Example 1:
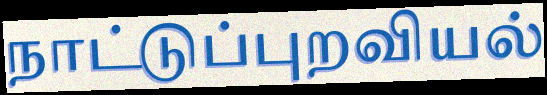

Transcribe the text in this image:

நாட்டுப்புறவியல்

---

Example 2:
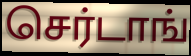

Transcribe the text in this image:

செர்டாங்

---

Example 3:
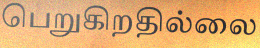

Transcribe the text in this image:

பெறுகிறதில்லை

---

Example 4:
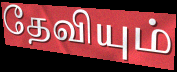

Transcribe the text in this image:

தேவியும்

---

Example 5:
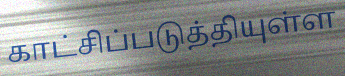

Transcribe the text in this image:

காட்சிப்படுத்தியுள்ள